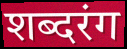
शब्दरंग